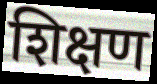
शिक्षण